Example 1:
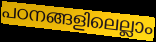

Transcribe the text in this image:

പഠനങ്ങളിലെല്ലാം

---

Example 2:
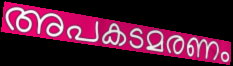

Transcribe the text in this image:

അപകടമരണം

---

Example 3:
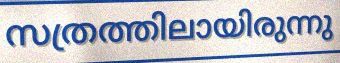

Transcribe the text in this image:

സത്രത്തിലായിരുന്നു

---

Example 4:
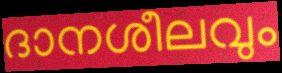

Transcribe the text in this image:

ദാനശീലവും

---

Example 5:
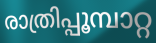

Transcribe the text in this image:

രാത്രിപ്പൂമ്പാറ്റ